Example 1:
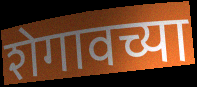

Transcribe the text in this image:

शेगावच्या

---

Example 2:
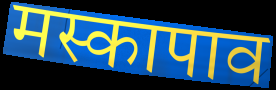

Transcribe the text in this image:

मस्कापाव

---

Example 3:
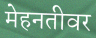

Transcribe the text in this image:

मेहनतीवर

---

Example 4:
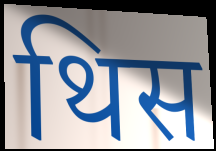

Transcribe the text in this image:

थिस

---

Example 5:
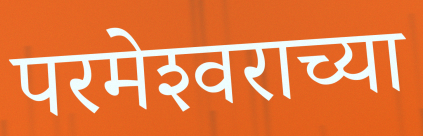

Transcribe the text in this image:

परमेश्‍वराच्या